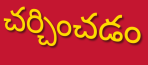
చర్చించడం